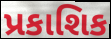
પ્રકાશિક